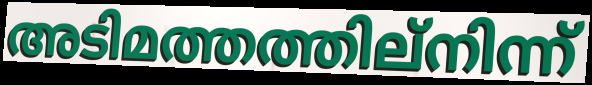
അടിമത്തത്തില്നിന്ന്